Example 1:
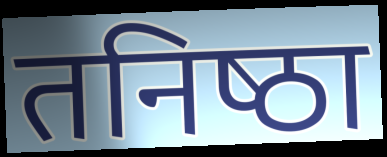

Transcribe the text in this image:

तनिष्‍ठा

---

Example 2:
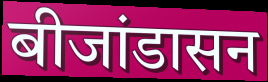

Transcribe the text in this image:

बीजांडासन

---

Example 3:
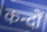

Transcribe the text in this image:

कन्दों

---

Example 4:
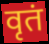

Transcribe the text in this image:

वृतं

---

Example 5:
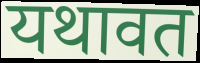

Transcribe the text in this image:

यथावत